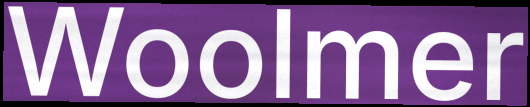
Woolmer